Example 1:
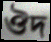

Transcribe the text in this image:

ঔদ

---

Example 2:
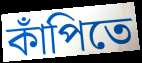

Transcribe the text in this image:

কাঁপিতে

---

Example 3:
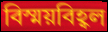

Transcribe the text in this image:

বিস্ময়বিহ্বল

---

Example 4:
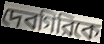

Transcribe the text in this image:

দেবগিরিকে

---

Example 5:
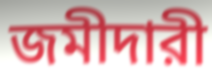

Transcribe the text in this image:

জমীদারী